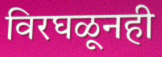
विरघळूनही